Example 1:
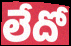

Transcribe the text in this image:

లేదో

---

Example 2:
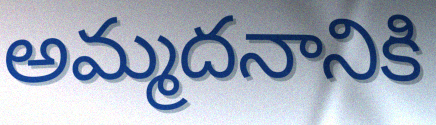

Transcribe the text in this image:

అమ్మదనానికి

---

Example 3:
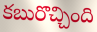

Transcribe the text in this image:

కబురొచ్చింది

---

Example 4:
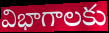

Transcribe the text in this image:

విభాగాలకు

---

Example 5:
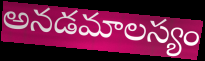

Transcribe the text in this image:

అనడమాలస్యం